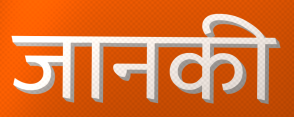
जानकी